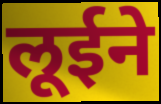
लूईने